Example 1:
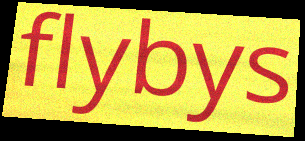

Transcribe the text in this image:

flybys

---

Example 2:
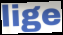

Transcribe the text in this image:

lige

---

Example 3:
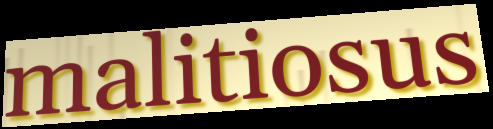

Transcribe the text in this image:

malitiosus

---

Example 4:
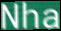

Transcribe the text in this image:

Nha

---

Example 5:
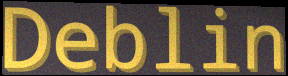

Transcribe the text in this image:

Deblin